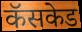
कॅसकेड